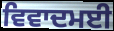
ਵਿਵਾਦਮਈ